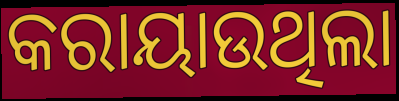
କରାୟାଉଥିଲା